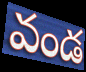
వండ